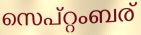
സെപ്റ്റംബര്